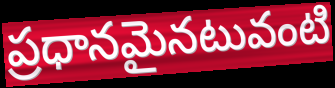
ప్రధానమైనటువంటి